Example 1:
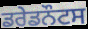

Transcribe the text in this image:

ਡਰੇਡਨੌਟਸ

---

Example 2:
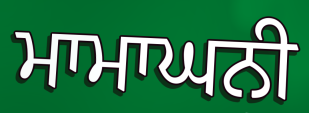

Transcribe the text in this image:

ਮਾਮਾਘਨੀ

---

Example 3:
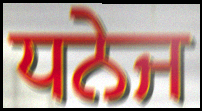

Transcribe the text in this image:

ਧਨੇਜ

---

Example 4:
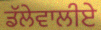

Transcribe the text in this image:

ਡੱਲੇਵਾਲੀਏ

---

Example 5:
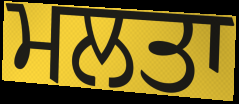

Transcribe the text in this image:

ਮਲਤਾ